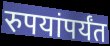
रुपयांपर्यंत